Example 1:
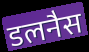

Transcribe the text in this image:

डलनैस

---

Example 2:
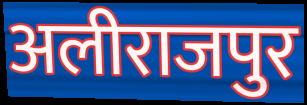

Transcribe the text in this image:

अलीराजपुर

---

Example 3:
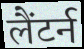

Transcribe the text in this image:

लैंटर्न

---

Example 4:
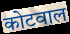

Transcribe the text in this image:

कोटवाल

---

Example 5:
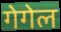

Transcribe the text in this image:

गेगेल